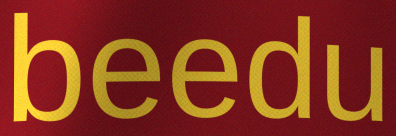
beedu